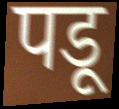
पडू